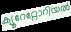
ക്യൂറേറ്റോറിയൽ